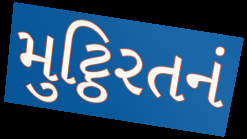
મુટ્ઠિરતનં